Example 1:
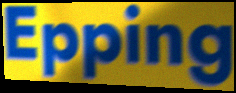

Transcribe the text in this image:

Epping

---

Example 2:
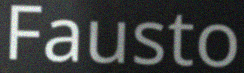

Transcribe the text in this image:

Fausto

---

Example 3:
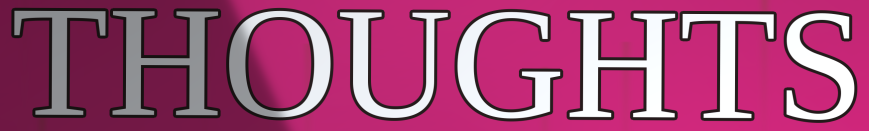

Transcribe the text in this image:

THOUGHTS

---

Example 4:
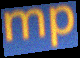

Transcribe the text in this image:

mp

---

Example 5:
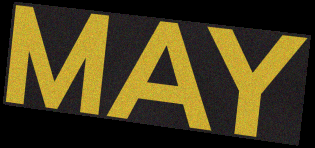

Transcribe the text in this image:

MAY